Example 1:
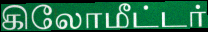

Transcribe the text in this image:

கிலோமீட்டர்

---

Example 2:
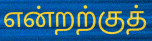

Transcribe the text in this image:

என்றற்குத்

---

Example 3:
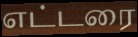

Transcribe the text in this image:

எட்டரை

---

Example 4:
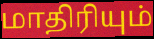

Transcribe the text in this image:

மாதிரியும்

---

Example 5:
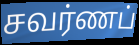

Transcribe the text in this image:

சவர்ணப்